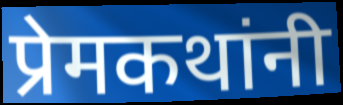
प्रेमकथांनी